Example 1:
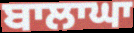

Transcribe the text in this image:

ਬਾਲਾਘਾ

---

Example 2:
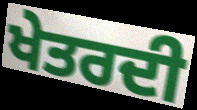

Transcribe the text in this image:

ਖੇਤਰਦੀ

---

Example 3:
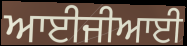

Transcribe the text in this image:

ਆਈਜੀਆਈ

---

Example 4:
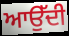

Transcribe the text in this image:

ਆਉੱਦੀ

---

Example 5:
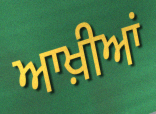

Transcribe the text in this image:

ਆਖ਼ੀਆਂ